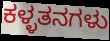
ಕಳ್ಳತನಗಳು